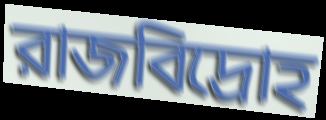
রাজবিদ্রোহ